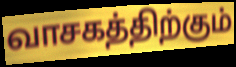
வாசகத்திற்கும்